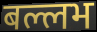
बल्लभ